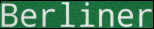
Berliner